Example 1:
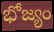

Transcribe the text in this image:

భోజ్యం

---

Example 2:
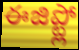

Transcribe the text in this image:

ఈజిప్ట్లో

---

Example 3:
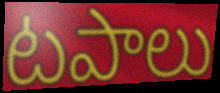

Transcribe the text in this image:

టపాలు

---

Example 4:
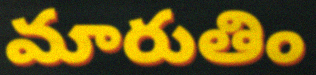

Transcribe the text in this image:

మారుతిం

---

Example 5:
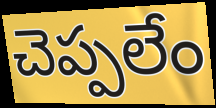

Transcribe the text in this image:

చెప్పలేం